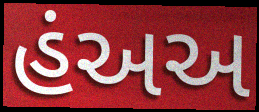
હંઅઅ